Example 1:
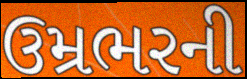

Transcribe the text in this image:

ઉમ્રભરની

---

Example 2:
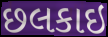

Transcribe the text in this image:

છલકાઇ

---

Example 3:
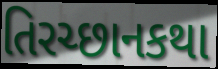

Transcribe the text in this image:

તિરચ્છાનકથા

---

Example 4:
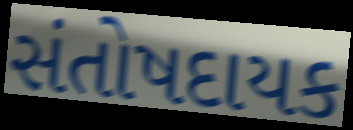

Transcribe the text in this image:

સંતોષદાયક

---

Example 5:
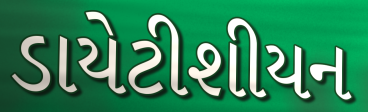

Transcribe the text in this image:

ડાયેટીશીયન